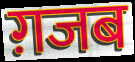
ग़जब